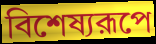
বিশেষ্যরূপে